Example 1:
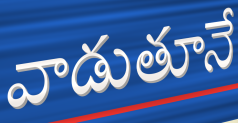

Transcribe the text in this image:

వాడుతూనే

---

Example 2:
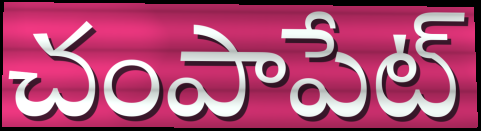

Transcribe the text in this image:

చంపాపేట్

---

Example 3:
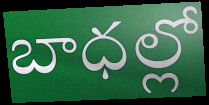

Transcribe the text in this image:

బాధల్లో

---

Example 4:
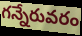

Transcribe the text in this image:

గన్నేరువరం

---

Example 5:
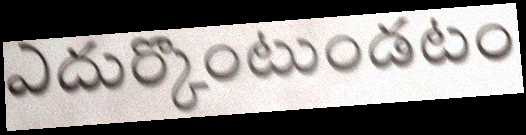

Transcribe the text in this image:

ఎదుర్కొంటుండటం